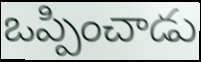
ఒప్పించాడు